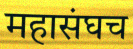
महासंघच